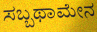
ಸಬ್ಬಥಾಮೇನ